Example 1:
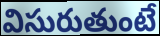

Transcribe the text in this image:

విసురుతుంటే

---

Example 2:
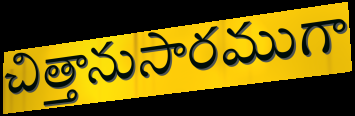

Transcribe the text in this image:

చిత్తానుసారముగా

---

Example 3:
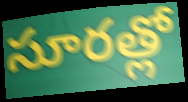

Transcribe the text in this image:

సూరత్లో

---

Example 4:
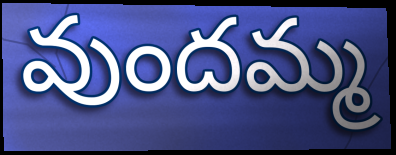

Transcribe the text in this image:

వుందమ్మ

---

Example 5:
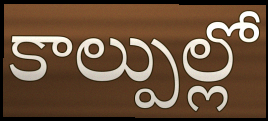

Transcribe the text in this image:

కాల్పుల్లో